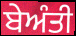
ਬੇਅੰਤੀ